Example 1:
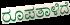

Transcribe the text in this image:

ರೂಪತಾಳಿದೆ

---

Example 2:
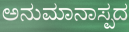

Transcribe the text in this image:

ಅನುಮಾನಾಸ್ಪದ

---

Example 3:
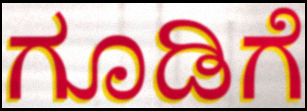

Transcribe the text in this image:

ಗೂಡಿಗೆ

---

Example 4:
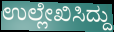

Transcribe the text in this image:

ಉಲ್ಲೇಖಿಸಿದ್ದು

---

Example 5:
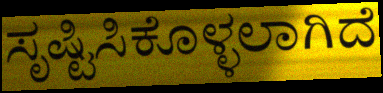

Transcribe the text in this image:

ಸೃಷ್ಟಿಸಿಕೊಳ್ಳಲಾಗಿದೆ